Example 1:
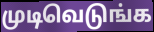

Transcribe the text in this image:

முடிவெடுங்க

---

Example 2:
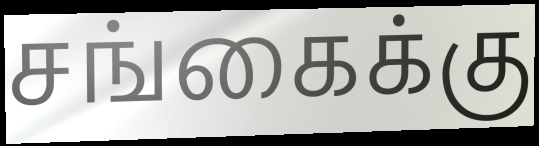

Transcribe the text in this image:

சங்கைக்கு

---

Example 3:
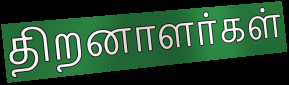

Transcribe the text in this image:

திறனாளர்கள்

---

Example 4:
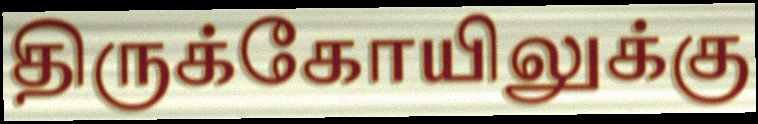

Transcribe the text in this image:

திருக்கோயிலுக்கு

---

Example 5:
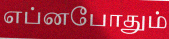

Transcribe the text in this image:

எப்னபோதும்